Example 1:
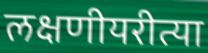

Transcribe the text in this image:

लक्षणीयरीत्या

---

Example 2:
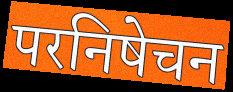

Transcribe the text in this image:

परनिषेचन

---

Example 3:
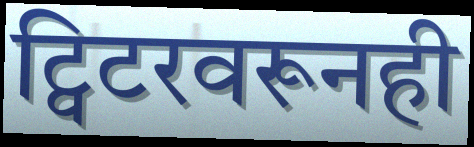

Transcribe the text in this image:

ट्विटरवरूनही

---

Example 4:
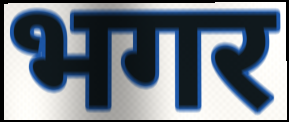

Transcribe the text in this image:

भगर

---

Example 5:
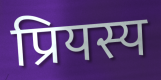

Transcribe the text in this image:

प्रियस्य